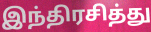
இந்திரசித்து